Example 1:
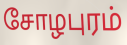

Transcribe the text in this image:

சோழபுரம்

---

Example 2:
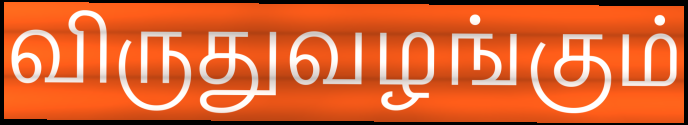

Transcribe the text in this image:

விருதுவழங்கும்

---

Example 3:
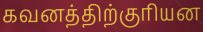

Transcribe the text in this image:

கவனத்திற்குரியன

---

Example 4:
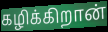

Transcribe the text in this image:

கழிக்கிறான்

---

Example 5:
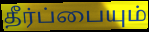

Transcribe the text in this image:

தீர்ப்பையும்